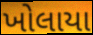
ખોલાયા